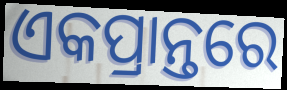
ଏକପ୍ରାନ୍ତରେ